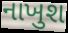
નાખુશ